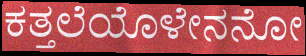
ಕತ್ತಲೆಯೊಳೇನನೋ